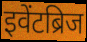
इवेंटब्रिज